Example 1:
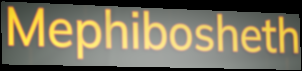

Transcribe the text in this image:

Mephibosheth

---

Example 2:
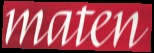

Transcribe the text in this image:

maten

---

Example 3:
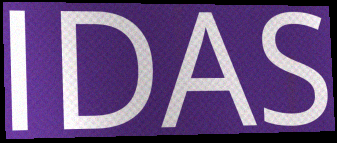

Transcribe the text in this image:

IDAS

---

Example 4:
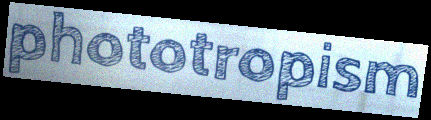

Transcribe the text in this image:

phototropism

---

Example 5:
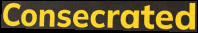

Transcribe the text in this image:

Consecrated